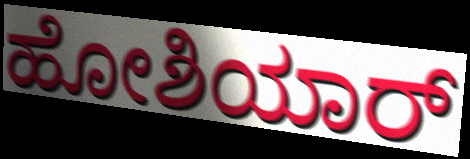
ಹೋಶಿಯಾರ್